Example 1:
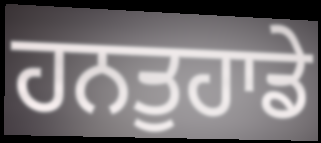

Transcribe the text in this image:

ਹਨਤੁਹਾਡੇ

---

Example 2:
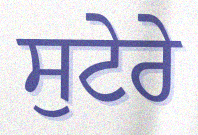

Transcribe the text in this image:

ਸੁਟੇਰੇ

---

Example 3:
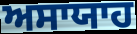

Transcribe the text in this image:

ਅਸਾਯਾਹ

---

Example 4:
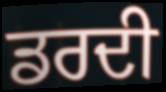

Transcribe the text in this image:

ਡਰਦੀ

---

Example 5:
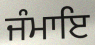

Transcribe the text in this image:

ਜੰਮਾਇ